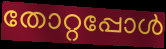
തോറ്റപ്പോൾ